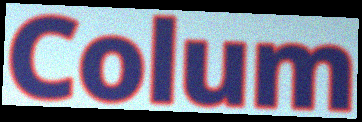
Colum